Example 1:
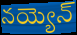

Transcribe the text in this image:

నయ్యెన్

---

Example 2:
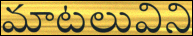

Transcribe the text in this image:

మాటలువిని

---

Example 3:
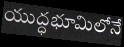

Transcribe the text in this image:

యుద్ధభూమిలోనే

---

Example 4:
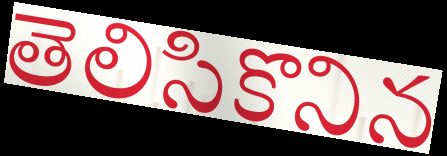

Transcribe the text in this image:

తెలిసికొనిన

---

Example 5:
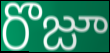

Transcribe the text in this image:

రొజూ